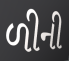
ળીની